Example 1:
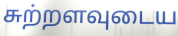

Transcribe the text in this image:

சுற்றளவுடைய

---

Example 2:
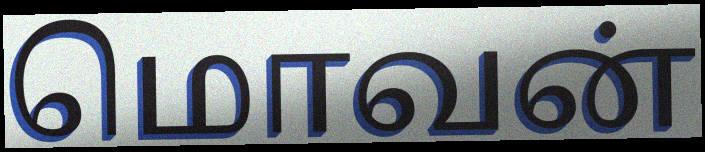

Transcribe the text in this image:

மொவன்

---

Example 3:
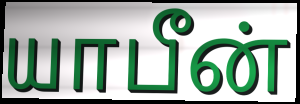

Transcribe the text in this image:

யாபீன்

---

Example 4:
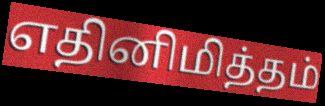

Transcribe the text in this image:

எதினிமித்தம்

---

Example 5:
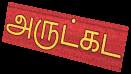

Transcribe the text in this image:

அருட்கட